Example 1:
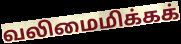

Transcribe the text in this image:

வலிமைமிக்கக்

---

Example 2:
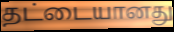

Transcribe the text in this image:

தட்டையானது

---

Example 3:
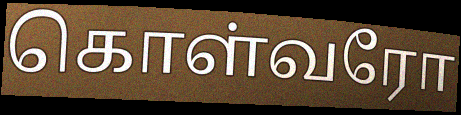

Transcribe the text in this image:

கொள்வரோ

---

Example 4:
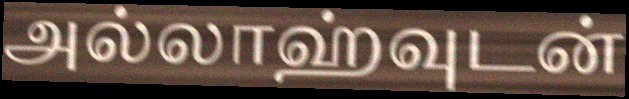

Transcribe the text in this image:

அல்லாஹ்வுடன்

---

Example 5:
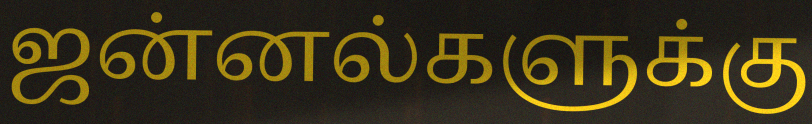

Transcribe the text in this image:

ஜன்னல்களுக்கு